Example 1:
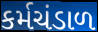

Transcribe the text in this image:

કર્મચંડાળ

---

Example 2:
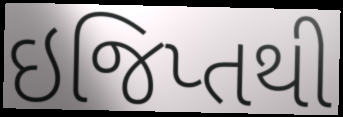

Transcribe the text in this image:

ઇજિપ્તથી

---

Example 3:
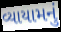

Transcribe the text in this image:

વ્યાયામનું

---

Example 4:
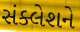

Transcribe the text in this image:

સંક્લેશને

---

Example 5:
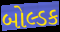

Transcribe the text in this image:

બોલ્ડક